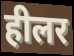
हीलर